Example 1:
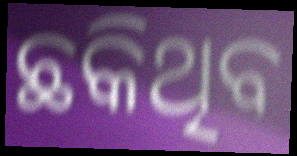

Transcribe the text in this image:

ଛକିଥିବ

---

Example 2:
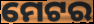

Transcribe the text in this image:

ମେଟର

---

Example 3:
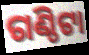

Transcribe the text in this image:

ଗଣ୍ଠିଟା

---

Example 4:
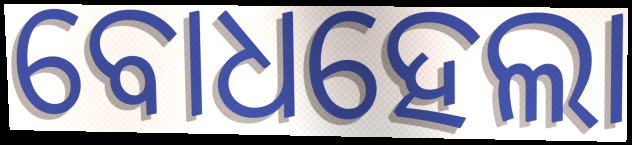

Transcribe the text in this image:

ବୋଧହେଲା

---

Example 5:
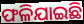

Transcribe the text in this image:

ଫଳିଯାଇଛି